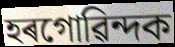
হৰগোৱিন্দক